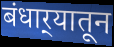
बंधार्यातून